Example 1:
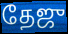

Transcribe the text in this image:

தேஜு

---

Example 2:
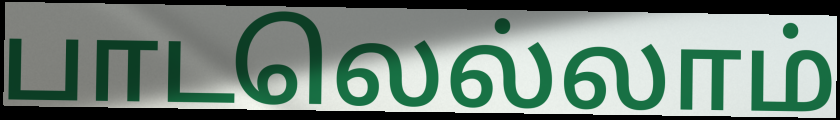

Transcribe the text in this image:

பாடலெல்லாம்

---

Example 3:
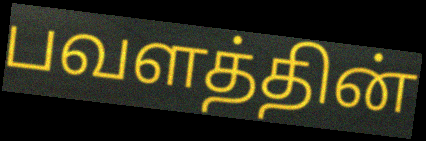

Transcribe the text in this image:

பவளத்தின்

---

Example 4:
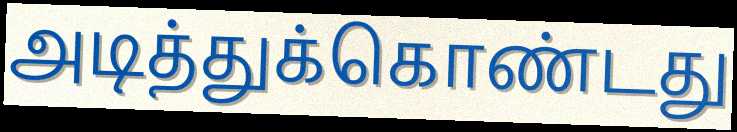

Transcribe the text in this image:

அடித்துக்கொண்டது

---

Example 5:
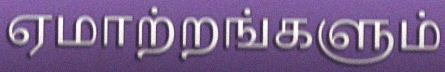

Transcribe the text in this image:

ஏமாற்றங்களும்